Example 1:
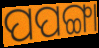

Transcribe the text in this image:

ପପଙ୍ଗା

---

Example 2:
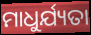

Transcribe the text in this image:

ମାଧୁର୍ଯ୍ୟତା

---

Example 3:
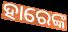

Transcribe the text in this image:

ହାରେଙ୍କ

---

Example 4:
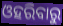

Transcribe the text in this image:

ଓହରିବାରୁ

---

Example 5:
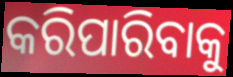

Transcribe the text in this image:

କରିପାରିବାକୁ